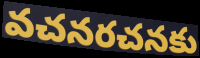
వచనరచనకు